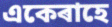
একেৰাহে